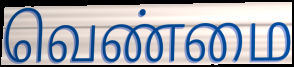
வெண்மை